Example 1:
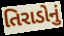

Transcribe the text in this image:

તિરાડોનું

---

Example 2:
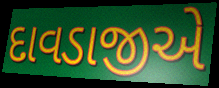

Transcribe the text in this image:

દાવડાજીએ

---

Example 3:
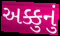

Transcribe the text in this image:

અક્કુનું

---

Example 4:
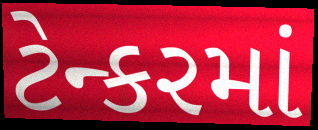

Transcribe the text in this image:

ટેન્કરમાં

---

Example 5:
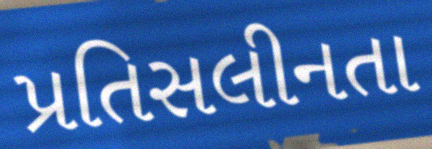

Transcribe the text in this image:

પ્રતિસલીનતા